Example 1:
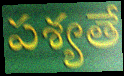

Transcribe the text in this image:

పశ్యతే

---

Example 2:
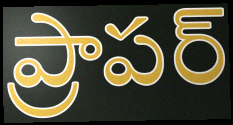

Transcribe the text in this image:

ప్రాపర్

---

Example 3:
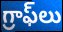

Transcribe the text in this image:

గ్రాఫ్‌లు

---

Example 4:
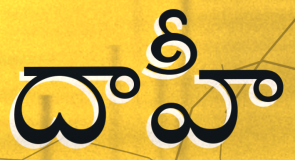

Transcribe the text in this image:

దాహీ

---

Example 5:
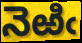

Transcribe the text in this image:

నెఱిఁ